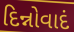
દિન્નોવાદં